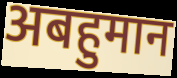
अबहुमान